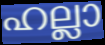
ഹല്ലാ